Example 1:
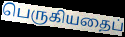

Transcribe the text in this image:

பெருகியதைப்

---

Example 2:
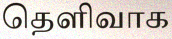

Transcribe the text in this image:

தெளிவாக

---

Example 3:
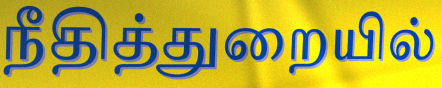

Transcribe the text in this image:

நீதித்துறையில்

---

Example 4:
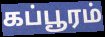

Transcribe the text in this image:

கப்பூரம்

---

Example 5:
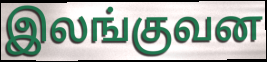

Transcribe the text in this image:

இலங்குவன